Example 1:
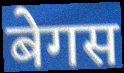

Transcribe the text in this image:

बेगस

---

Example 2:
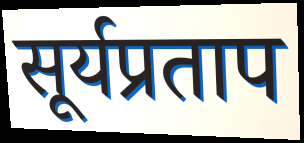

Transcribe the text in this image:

सूर्यप्रताप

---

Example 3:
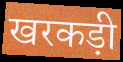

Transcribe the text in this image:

खरकड़ी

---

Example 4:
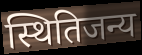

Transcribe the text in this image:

स्थितिजन्य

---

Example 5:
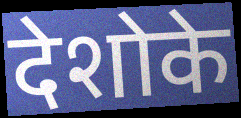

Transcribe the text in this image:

देशोके